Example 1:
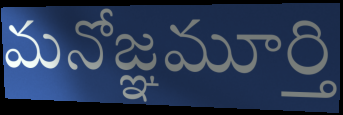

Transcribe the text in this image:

మనోజ్ఞమూర్తి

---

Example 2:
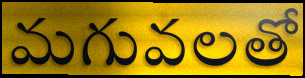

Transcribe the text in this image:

మగువలతో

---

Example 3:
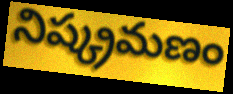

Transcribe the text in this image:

నిష్క్రమణం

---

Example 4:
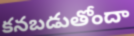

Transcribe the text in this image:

కనబడుతోందా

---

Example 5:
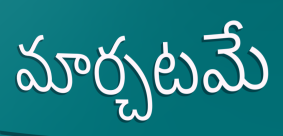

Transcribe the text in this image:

మార్చటమే